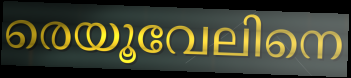
രെയൂവേലിനെ